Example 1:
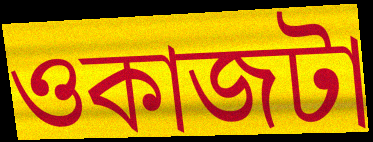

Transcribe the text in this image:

ওকাজটা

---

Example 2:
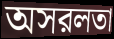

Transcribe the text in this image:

অসরলতা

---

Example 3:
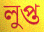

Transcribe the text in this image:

লুপ্ত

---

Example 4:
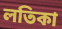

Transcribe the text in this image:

লতিকা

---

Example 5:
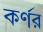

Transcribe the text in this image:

কর্ণর